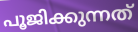
പൂജിക്കുന്നത്